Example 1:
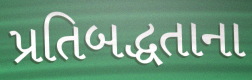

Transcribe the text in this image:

પ્રતિબદ્ધતાના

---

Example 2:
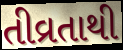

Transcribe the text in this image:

તીવ્રતાથી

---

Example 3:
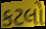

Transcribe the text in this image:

કટલો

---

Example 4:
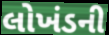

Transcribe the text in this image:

લોખંડની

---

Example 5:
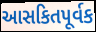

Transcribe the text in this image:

આસકિતપૂર્વક